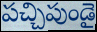
పచ్చిపుండై